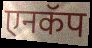
एनकॅप